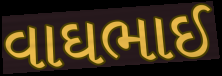
વાઘભાઈ